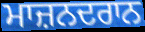
ਮਾਜ਼ਨਦਰਾਨ